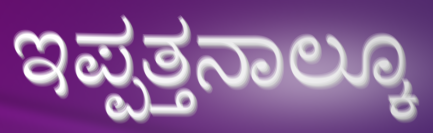
ಇಪ್ಪತ್ತನಾಲ್ಕೂ